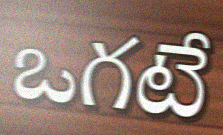
ఒగటే